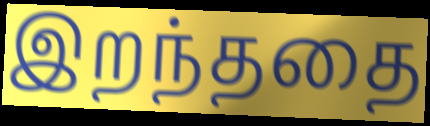
இறந்ததை